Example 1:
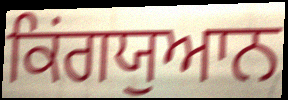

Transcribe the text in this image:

ਕਿਂਗਯੁਆਨ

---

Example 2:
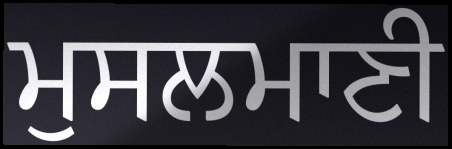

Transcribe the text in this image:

ਮੁਸਲਮਾਣੀ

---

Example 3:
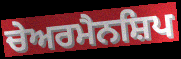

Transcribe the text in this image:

ਚੇਅਰਮੈਨਸ਼ਿਪ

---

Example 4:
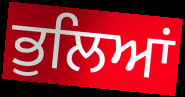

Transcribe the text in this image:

ਭੁਲਿਆਂ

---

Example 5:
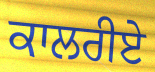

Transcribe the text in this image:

ਕਾਲਰੀਏ